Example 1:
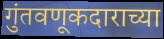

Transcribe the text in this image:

गुंतवणूकदाराच्या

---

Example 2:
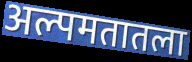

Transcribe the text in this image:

अल्पमतातला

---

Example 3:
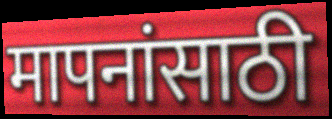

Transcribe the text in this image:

मापनांसाठी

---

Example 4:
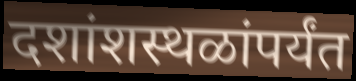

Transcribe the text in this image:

दशांशस्थळांपर्यंत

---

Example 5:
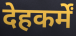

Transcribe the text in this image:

देहकर्में